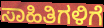
ಸಾಹಿತಿಗಳಿಗೆ